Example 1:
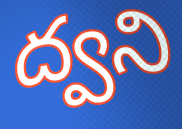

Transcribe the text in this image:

ద్వని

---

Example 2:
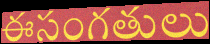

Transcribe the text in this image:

ఈసంగతులు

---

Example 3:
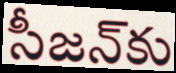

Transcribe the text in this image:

సీజన్‌కు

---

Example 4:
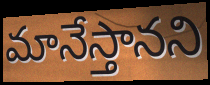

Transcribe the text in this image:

మానేస్తానని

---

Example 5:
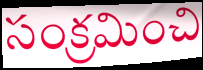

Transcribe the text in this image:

సంక్రమించి